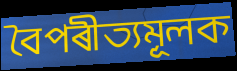
বৈপৰীত্যমূলক